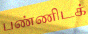
பண்ணிடக்